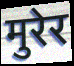
मुरेर